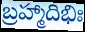
బ్రహ్మాదిభిః